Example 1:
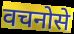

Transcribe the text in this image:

वचनोसे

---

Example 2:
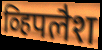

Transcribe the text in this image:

व्हिपलैश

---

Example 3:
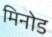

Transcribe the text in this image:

मिनोड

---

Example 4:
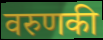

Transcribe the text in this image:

वरुणकी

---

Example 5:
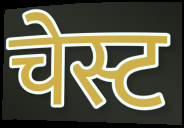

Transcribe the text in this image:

चेस्ट